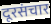
दूरसंचार